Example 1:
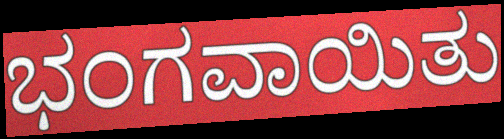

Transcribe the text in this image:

ಭಂಗವಾಯಿತು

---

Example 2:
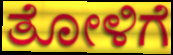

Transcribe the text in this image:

ತೋಳಿಗೆ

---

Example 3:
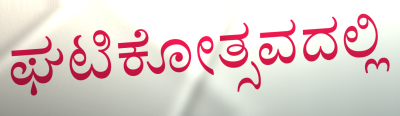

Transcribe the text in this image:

ಘಟಿಕೋತ್ಸವದಲ್ಲಿ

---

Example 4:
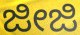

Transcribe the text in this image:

ಜೀಜಿ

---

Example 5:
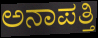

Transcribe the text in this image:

ಅನಾಪತ್ತಿ